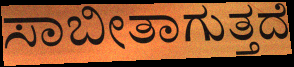
ಸಾಬೀತಾಗುತ್ತದೆ